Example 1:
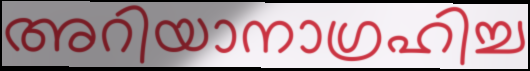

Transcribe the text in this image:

അറിയാനാഗ്രഹിച്ച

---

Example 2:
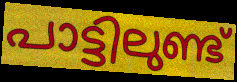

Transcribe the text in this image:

പാട്ടിലുണ്ട്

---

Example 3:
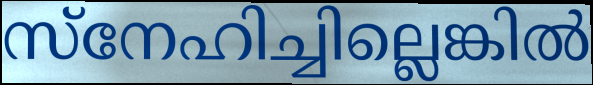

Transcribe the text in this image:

സ്നേഹിച്ചില്ലെങ്കിൽ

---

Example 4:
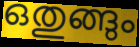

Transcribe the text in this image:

ഒതുങ്ങും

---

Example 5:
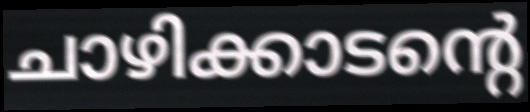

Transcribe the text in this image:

ചാഴിക്കാടന്റെ